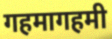
गहमागहमी